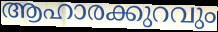
ആഹാരക്കുറവും